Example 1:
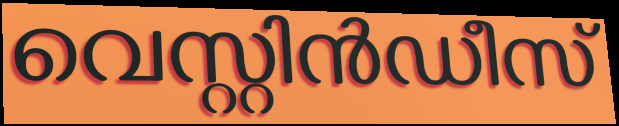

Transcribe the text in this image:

വെസ്റ്റിൻഡീസ്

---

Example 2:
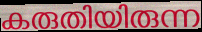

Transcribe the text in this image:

കരുതിയിരുന്ന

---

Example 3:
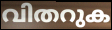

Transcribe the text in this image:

വിതറുക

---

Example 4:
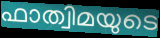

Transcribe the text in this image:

ഫാത്വിമയുടെ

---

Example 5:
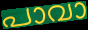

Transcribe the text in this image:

പാവാ